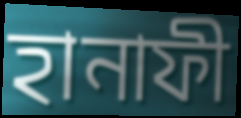
হানাফী